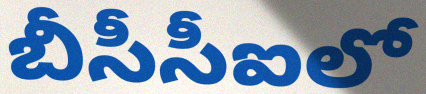
బీసీసీఐలో